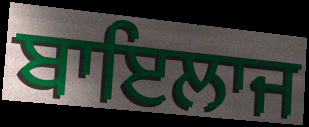
ਬਾਇਲਾਜ